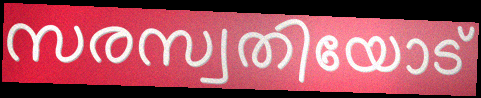
സരസ്വതിയോട്